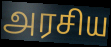
அரசிய